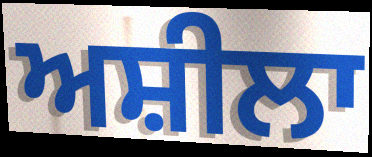
ਅਸ਼ੀਲਾ